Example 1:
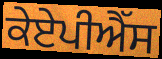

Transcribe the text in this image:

ਕੇਏਪੀਐੱਸ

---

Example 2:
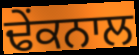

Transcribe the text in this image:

ਢੇਂਕਨਾਲ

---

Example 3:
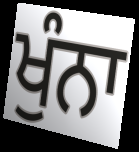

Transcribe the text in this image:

ਖੁੰਨਾ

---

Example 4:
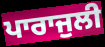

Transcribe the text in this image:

ਪਾਰਾਜੁਲੀ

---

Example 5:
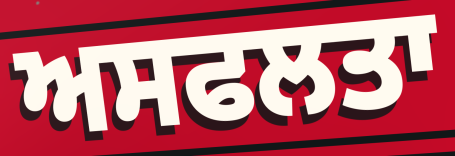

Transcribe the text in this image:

ਅਸਫਲਤਾ